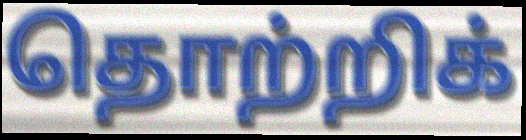
தொற்றிக்